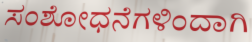
ಸಂಶೋಧನೆಗಳಿಂದಾಗಿ